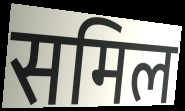
समिल